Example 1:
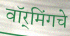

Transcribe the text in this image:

वॉर्मिंगचे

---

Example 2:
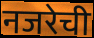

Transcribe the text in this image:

नजरेची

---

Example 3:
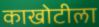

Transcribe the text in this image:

काखोटीला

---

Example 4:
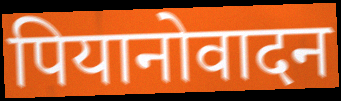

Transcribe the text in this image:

पियानोवादन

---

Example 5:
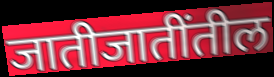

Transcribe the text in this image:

जातीजातींतील